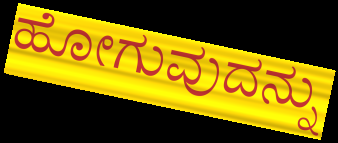
ಹೋಗುವುದನ್ನು